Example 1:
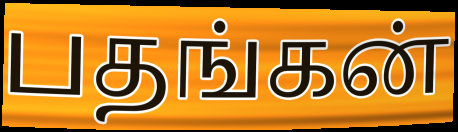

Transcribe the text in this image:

பதங்கன்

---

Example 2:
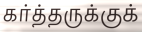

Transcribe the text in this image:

கர்த்தருக்குக்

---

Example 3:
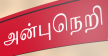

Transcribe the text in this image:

அன்புநெறி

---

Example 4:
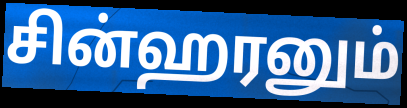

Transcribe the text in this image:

சின்ஹரனும்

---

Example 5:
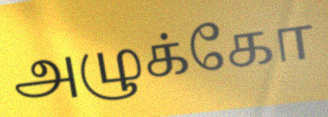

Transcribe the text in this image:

அழுக்கோ